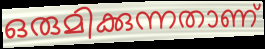
ഒരുമിക്കുന്നതാണ്